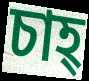
চাহ্